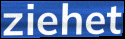
ziehet